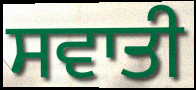
ਸਵਾਤੀ